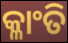
କ୍ଳାଂତି